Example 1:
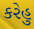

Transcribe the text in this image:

કરેહુ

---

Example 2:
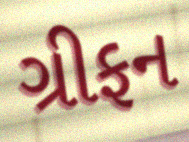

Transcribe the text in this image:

ગ્રીફન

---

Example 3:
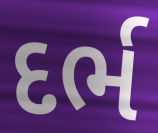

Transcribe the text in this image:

દર્ભ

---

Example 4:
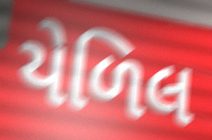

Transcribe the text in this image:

યેળિલ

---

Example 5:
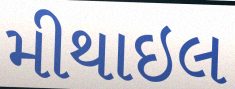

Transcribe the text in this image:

મીથાઇલ